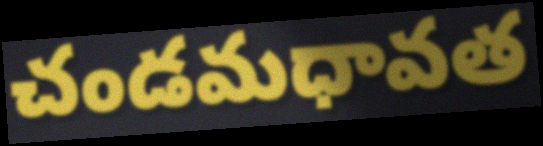
చండమధావత